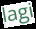
lagi